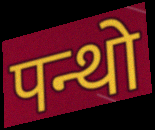
पन्थो